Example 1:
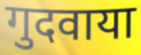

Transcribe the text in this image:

गुदवाया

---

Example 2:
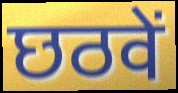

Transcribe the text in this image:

छठवें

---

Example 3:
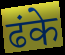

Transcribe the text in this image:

ढंके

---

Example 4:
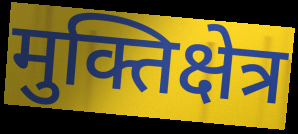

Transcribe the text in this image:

मुक्तिक्षेत्र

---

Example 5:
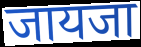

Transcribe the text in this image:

जायजा